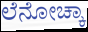
ಲೆನೋಚ್ಕಾ